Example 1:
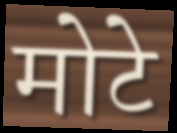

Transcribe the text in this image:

मोटे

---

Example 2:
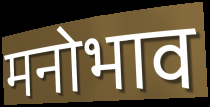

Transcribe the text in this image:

मनोभाव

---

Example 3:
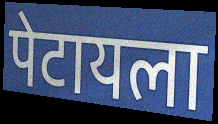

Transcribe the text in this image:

पेटायला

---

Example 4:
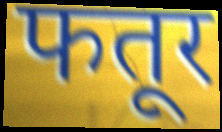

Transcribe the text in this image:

फतूर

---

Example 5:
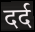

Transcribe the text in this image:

दर्द